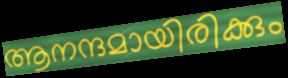
ആനന്ദമായിരിക്കും